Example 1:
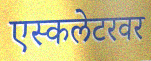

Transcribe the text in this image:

एस्कलेटरवर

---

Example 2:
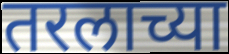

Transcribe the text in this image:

तरलाच्या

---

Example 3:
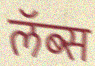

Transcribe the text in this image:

लॅब्स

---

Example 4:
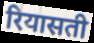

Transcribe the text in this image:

रियासती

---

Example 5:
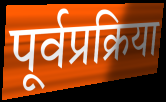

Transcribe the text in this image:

पूर्वप्रक्रिया